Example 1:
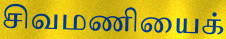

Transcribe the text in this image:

சிவமணியைக்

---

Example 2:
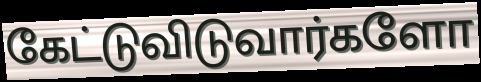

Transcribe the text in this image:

கேட்டுவிடுவார்களோ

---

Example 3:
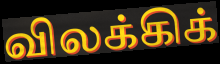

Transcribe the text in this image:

விலக்கிக்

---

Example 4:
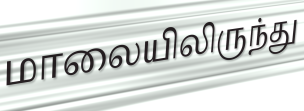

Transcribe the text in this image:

மாலையிலிருந்து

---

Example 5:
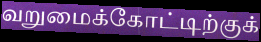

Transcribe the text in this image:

வறுமைக்கோட்டிற்குக்